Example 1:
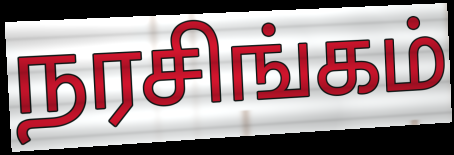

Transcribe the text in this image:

நரசிங்கம்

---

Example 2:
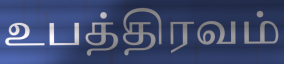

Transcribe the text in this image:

உபத்திரவம்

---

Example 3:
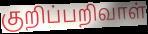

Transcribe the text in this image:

குறிப்பறிவாள்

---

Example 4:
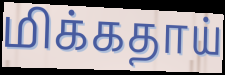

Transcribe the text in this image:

மிக்கதாய்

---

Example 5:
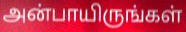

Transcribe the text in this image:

அன்பாயிருங்கள்